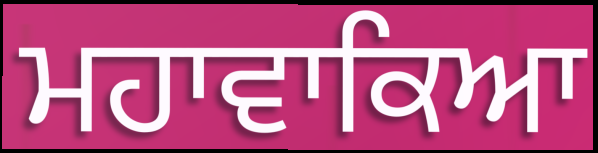
ਮਹਾਵਾਕਿਆ